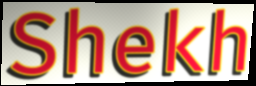
Shekh